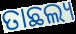
ତାଛଲ୍ୟ